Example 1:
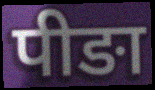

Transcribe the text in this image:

पीङा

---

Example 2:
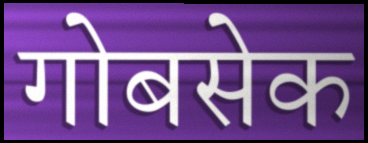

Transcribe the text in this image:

गोबसेक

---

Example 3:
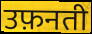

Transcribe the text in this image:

उफ़नती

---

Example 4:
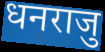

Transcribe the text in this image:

धनराजु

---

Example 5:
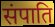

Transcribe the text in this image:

संपाति